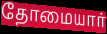
தோமையார்